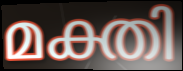
മക്തി